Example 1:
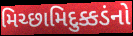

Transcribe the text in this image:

મિચ્છામિદુક્કડંનો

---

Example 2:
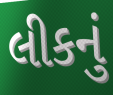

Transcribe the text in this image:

લીકનું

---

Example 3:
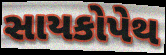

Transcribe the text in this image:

સાયકોપેથ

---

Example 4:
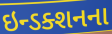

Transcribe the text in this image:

ઇન્ડક્શનના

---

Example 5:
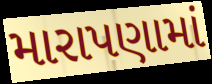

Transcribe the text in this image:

મારાપણામાં